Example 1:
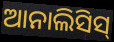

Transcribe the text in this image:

ଆନାଲିସିସ୍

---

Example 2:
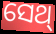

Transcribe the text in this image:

ସେଥ୍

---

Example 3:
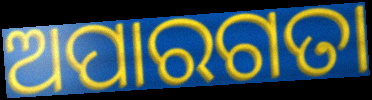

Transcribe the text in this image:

ଅପାରଗତା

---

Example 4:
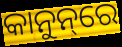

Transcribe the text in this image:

କାନୁନ୍‌ରେ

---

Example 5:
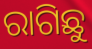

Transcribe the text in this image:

ରାଗିଛୁ